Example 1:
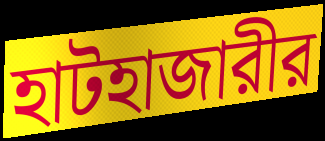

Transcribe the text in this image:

হাটহাজারীর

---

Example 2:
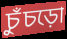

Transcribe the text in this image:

চুঁচড়ো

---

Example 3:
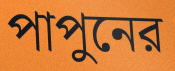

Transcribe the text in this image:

পাপুনের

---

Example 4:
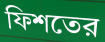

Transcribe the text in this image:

ফিশতের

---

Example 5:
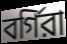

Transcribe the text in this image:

বর্গিরা